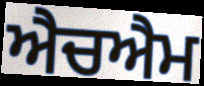
ਐਚਐਮ